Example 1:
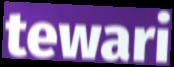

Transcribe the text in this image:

tewari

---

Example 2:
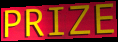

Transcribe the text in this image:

PRIZE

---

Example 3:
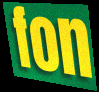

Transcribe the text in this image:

fon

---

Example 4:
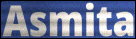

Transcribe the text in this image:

Asmita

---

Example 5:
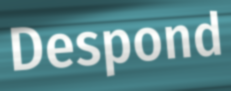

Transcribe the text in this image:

Despond